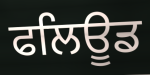
ਫਲਿਊਡ